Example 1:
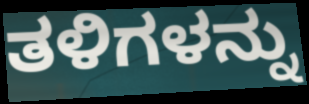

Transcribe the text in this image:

ತಳಿಗಳನ್ನು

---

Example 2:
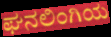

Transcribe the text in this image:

ಘನಲಿಂಗಿಯ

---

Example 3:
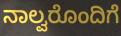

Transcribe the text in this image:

ನಾಲ್ವರೊಂದಿಗೆ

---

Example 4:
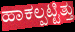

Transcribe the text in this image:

ಹಾಕಲ್ಪಟ್ಟಿತ್ತು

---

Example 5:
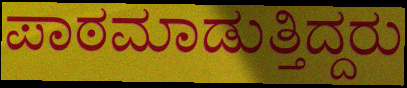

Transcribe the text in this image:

ಪಾಠಮಾಡುತ್ತಿದ್ದರು